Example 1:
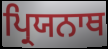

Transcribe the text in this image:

ਪ੍ਰਿਯਨਾਥ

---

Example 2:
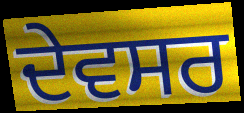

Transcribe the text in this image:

ਦੇਵਸਰ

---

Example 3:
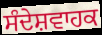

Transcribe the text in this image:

ਸੰਦੇਸ਼ਵਾਹਕ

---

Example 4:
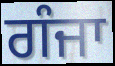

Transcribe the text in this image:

ਗੰਜਾ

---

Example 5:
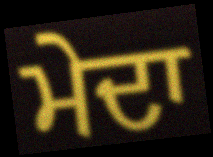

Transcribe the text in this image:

ਮੇਦਾ